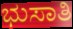
ಭುಸಾತಿ